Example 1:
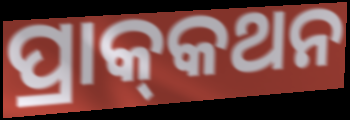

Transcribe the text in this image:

ପ୍ରାକ୍‍କଥନ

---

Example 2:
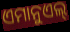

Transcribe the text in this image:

ଏମାନୁଏଲ୍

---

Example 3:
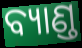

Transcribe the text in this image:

ବ୍ୟାଣ୍ଡ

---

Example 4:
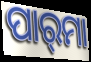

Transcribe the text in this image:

ପାର୍‌ମା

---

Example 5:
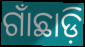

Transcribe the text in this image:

ଗାଁଛାଡ଼ି